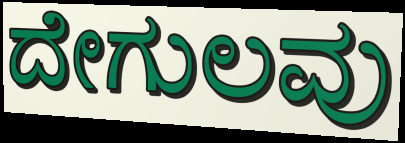
ದೇಗುಲವು